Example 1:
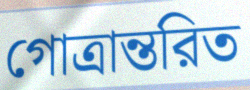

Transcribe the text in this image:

গোত্রান্তরিত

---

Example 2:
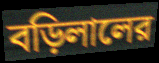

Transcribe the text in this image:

বড়িলালের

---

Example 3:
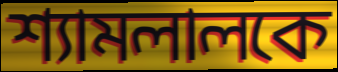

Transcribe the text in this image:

শ্যামলালকে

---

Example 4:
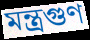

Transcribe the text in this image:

মন্ত্রগুণ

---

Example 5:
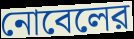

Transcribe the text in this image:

নোবেলের